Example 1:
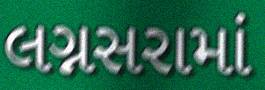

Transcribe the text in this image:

લગ્નસરામાં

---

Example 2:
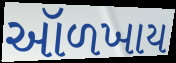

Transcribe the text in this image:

ઑળખાય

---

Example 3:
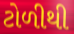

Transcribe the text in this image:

ટોળીથી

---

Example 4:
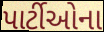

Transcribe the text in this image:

પાર્ટીઓના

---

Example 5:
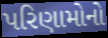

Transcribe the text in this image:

પરિણામોનો